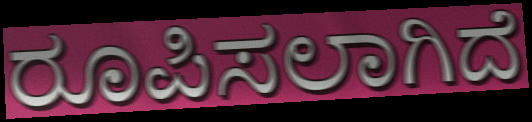
ರೂಪಿಸಲಾಗಿದೆ